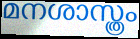
മനശാസ്ത്രം